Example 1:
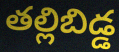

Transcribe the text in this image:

తల్లిబిడ్డ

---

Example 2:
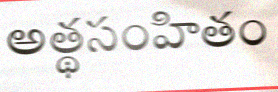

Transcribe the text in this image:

అత్థసంహితం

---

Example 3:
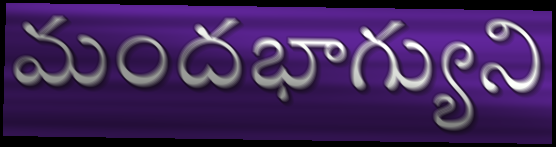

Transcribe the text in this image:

మందభాగ్యుని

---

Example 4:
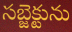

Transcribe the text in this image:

సబ్జెక్టును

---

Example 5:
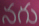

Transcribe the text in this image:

నగు